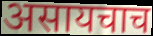
असायचाच